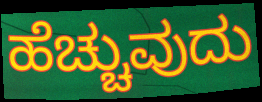
ಹೆಚ್ಚುವುದು